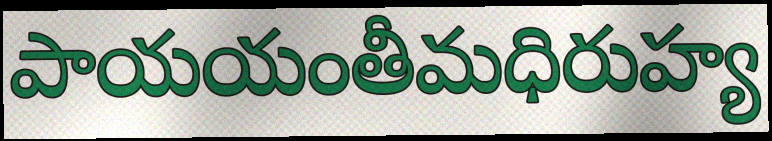
పాయయంతీమధిరుహ్య